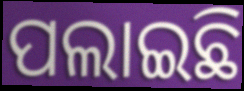
ପଲାଇଛି